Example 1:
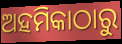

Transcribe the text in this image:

ଅହମିକାଠାରୁ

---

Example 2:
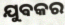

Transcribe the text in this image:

ଯୁଵକର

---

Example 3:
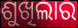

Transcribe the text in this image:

ଶୁଖିଲାର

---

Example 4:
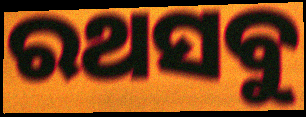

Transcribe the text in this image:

ରଥସବୁ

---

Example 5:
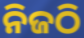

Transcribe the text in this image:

ନିଜଠି